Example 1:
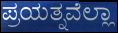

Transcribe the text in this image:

ಪ್ರಯತ್ನವೆಲ್ಲಾ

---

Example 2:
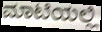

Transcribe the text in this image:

ಮಾಟೆಯಲ್ಲಿ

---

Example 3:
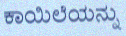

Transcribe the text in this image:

ಕಾಯಿಲೆಯನ್ನು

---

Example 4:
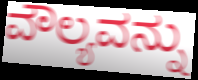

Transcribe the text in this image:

ವೌಲ್ಯವನ್ನು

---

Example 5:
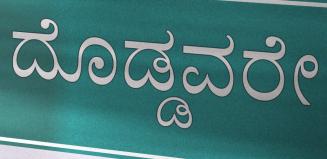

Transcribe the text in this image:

ದೊಡ್ಡವರೇ